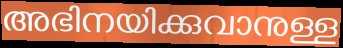
അഭിനയിക്കുവാനുള്ള